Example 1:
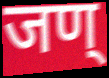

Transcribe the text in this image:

जण्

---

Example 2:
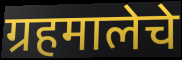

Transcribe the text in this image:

ग्रहमालेचे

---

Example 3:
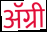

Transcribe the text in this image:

ॲग्री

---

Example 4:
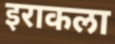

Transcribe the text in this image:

इराकला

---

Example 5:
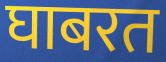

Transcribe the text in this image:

घाबरत